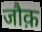
जौक़